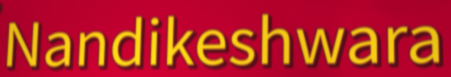
Nandikeshwara